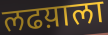
लढय़ाला